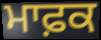
ਮਾਫ਼ਕ